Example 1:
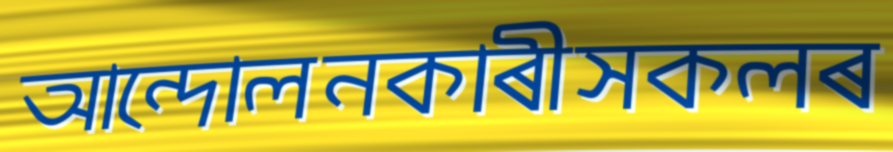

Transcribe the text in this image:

আন্দোলনকাৰীসকলৰ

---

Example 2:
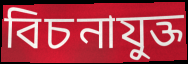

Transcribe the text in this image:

বিচনাযুক্ত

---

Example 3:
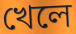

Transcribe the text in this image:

খেলে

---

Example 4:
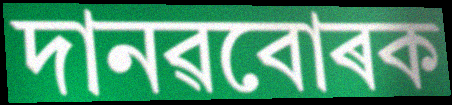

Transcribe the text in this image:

দানৱবোৰক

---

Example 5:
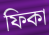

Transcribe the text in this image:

ফিকা